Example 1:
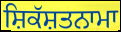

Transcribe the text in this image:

ਸ਼ਿਕੱਸ਼ਤਨਾਮਾ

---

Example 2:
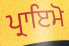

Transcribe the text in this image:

ਪ੍ਰਾਇਮੋ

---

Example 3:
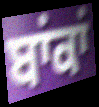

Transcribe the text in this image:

ਬਾਂਕਾਂ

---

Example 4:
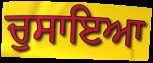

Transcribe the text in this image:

ਚੁਸਾਇਆ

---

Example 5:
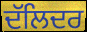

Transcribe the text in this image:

ਦੱਲਿਦਰ